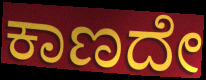
ಕಾಣದೇ